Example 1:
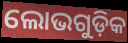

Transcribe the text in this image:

ଲୋଭଗୁଡ଼ିକ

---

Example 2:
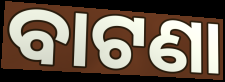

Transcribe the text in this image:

ବାଟଣା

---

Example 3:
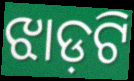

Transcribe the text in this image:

ଝାଡ଼ଟି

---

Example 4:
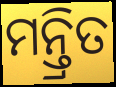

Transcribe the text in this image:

ମନ୍ତ୍ରିତ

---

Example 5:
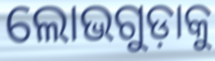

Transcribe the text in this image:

ଲୋଭଗୁଡ଼ାକୁ